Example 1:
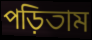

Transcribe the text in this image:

পড়িতাম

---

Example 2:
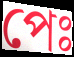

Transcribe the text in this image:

পেঃ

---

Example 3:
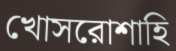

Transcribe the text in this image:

খোসরোশাহি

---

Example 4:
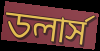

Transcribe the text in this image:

ডলার্স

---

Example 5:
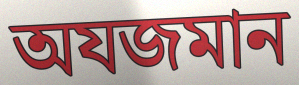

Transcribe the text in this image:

অযজমান